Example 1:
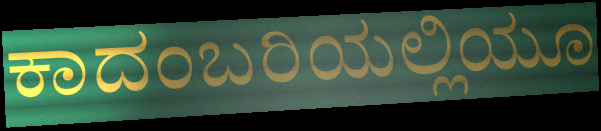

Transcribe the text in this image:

ಕಾದಂಬರಿಯಲ್ಲಿಯೂ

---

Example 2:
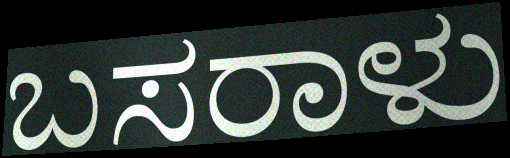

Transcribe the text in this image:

ಬಸರಾಳು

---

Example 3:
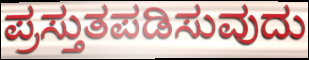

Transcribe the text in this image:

ಪ್ರಸ್ತುತಪಡಿಸುವುದು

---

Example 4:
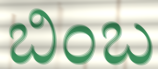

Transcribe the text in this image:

ಬಿಂಬ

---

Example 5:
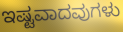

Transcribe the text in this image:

ಇಷ್ಟವಾದವುಗಳು